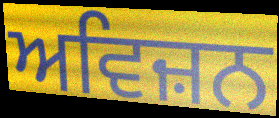
ਅਵਿਜ਼ਨ